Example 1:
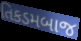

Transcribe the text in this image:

તિકડમબાજ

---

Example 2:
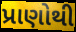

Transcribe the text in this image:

પ્રાણોથી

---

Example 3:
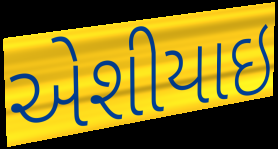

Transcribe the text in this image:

એશીયાઇ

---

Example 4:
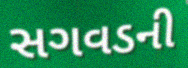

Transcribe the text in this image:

સગવડની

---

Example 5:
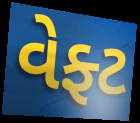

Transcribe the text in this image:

વેફ્ટ